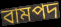
বামপদ